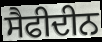
ਸੈਫੀਦੀਨ